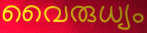
വൈരുധ്യം